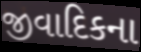
જીવાદિકના